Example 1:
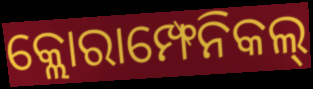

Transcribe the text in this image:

କ୍ଲୋରାମ୍ଫେନିକଲ୍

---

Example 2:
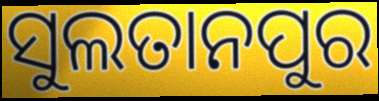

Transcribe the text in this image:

ସୁଲତାନପୁର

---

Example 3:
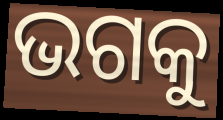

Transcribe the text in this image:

ଭଗକୁ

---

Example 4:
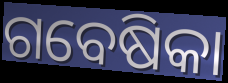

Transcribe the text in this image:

ଗବେଷିକା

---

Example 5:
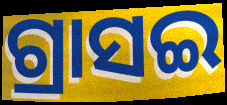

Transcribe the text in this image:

ଗ୍ରାସଇ